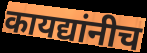
कायद्यांनीच